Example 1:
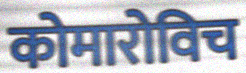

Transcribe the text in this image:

कोमारोविच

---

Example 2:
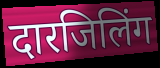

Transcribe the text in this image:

दारजिलिंग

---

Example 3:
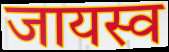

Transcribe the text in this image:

जायस्व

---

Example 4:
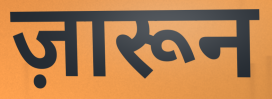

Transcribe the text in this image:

ज़ारून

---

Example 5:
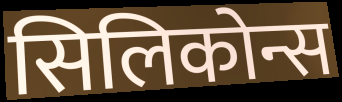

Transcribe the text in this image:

सिलिकोन्स